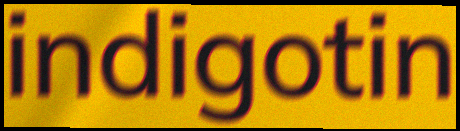
indigotin